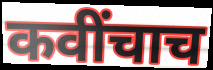
कवींचाच